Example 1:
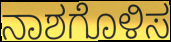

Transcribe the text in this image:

ನಾಶಗೊಳಿಸ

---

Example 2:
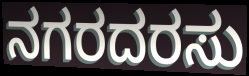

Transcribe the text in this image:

ನಗರದರಸು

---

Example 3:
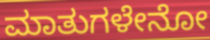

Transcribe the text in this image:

ಮಾತುಗಳೇನೋ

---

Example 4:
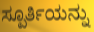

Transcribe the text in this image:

ಸ್ಪೂರ್ತಿಯನ್ನು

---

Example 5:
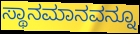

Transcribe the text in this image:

ಸ್ಥಾನಮಾನವನ್ನೂ